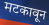
मटकावून